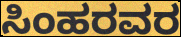
ಸಿಂಹರವರ